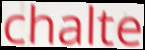
chalte